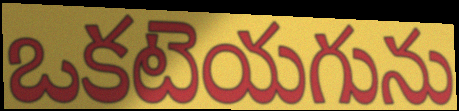
ఒకటెయగును